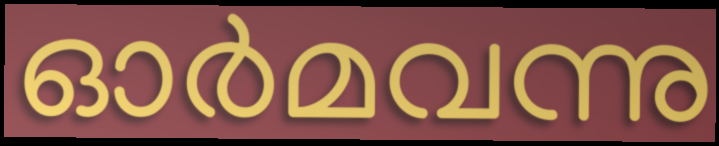
ഓർമവന്നു